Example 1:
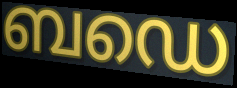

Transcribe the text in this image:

ബഡെ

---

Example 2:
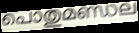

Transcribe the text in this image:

പൊതുമണ്ഡല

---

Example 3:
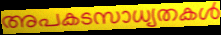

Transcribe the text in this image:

അപകടസാധ്യതകൾ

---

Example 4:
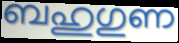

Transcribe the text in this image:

ബഹുഗുണ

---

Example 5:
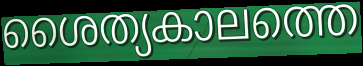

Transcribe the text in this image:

ശൈത്യകാലത്തെ